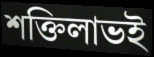
শক্তিলাভই